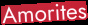
Amorites